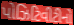
પોઝિટિવીટીનો